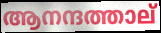
ആനന്ദത്താല്